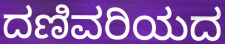
ದಣಿವರಿಯದ